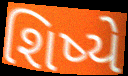
શિષ્યે